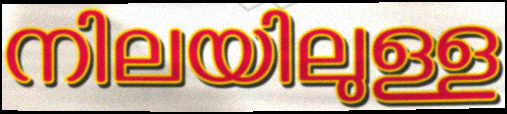
നിലയിലുള്ള